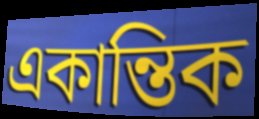
একান্তিক